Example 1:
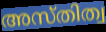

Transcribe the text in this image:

അസ്തിത്വ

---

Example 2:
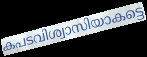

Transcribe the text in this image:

കപടവിശ്വാസിയാകട്ടെ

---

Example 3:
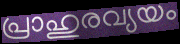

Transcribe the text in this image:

പ്രാഹുരവ്യയം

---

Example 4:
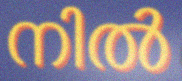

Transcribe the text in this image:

നിൽ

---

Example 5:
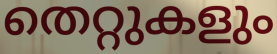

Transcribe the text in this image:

തെറ്റുകളും